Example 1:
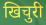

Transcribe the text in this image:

खिचुरी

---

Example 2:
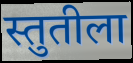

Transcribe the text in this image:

स्तुतीला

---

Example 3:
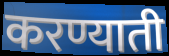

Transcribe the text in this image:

करण्याती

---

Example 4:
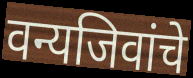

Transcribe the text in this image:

वन्यजिवांचे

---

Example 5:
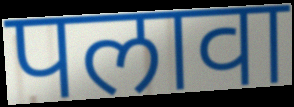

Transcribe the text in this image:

पलावा